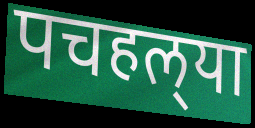
पचहल्या